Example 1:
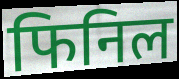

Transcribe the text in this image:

फिनिल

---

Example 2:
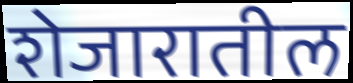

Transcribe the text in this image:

शेजारातील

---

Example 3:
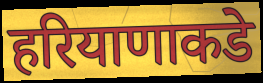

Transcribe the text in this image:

हरियाणाकडे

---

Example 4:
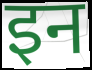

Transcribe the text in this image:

इन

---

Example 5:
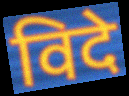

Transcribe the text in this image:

विदे